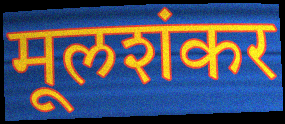
मूलशंकर